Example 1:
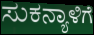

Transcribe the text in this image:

ಸುಕನ್ಯಾಳಿಗೆ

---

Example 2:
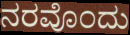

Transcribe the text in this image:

ನರವೊಂದು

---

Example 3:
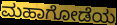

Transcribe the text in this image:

ಮಹಾಗೋಡೆಯ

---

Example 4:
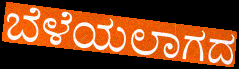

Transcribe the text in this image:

ಬೆಳೆಯಲಾಗದ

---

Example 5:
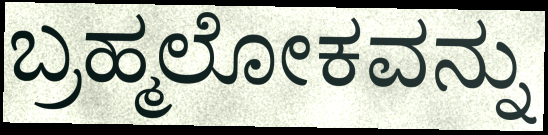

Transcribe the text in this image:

ಬ್ರಹ್ಮಲೋಕವನ್ನು